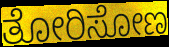
ತೋರಿಸೋಣ